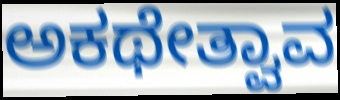
ಅಕಥೇತ್ವಾವ